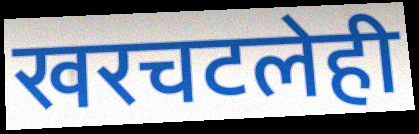
खरचटलेही